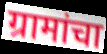
ग्रामांचा